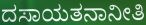
ದಸಾಯತನಾನೀತಿ